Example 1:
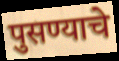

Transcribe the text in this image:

पुसण्याचे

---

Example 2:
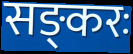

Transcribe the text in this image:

सङ्करः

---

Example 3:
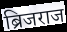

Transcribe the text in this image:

ब्रिजराज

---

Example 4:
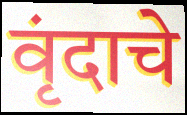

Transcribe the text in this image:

वृंदाचे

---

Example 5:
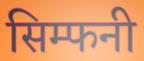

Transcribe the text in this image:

सिम्फनी